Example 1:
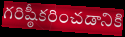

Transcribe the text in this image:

గరిష్ఠీకరించడానికి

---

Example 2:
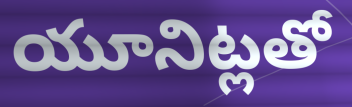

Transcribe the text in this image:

యూనిట్లతో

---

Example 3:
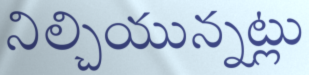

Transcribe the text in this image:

నిల్చియున్నట్లు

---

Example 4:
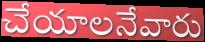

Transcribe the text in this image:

చేయాలనేవారు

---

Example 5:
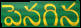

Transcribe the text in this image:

పెనగిన